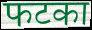
फटका